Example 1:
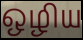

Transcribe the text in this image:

ஒழிய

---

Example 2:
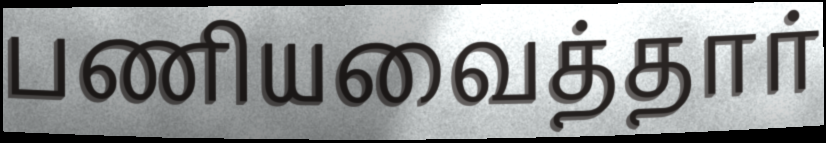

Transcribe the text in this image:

பணியவைத்தார்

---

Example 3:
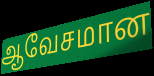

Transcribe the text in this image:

ஆவேசமான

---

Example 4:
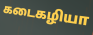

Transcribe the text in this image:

கடைகழியா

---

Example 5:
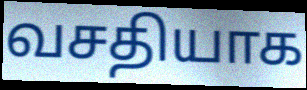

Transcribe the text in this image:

வசதியாக